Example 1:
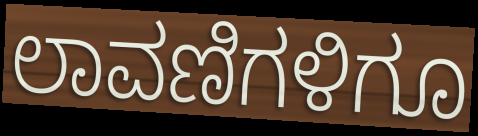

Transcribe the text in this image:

ಲಾವಣಿಗಳಿಗೂ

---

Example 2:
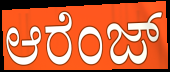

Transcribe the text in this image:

ಆರೆಂಜ್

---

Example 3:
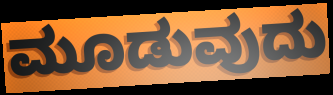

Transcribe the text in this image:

ಮೂಡುವುದು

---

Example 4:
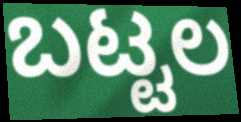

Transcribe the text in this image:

ಬಟ್ಟಲ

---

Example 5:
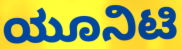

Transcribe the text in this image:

ಯೂನಿಟಿ